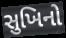
સુખિનો